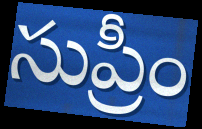
సుప్రీం